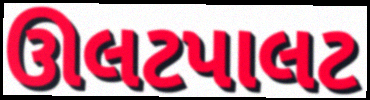
ઊલટપાલટ